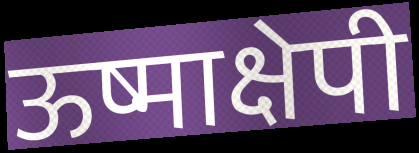
ऊष्माक्षेपी